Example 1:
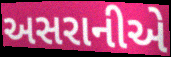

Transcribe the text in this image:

અસરાનીએ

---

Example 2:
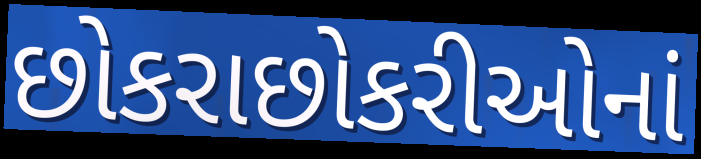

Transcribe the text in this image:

છોકરાછોકરીઓનાં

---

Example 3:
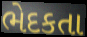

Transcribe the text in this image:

ભેદકતા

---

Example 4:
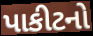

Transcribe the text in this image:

પાકીટનો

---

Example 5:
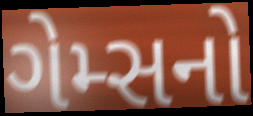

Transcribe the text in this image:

ગેમ્સનો